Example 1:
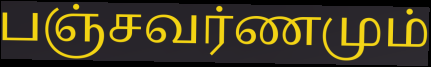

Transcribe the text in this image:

பஞ்சவர்ணமும்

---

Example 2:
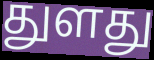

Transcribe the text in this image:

துளது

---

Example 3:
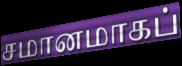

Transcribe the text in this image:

சமானமாகப்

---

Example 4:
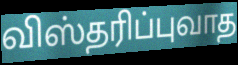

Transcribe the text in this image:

விஸ்தரிப்புவாத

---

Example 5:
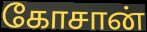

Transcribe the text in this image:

கோசான்